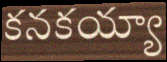
కనకయ్యా